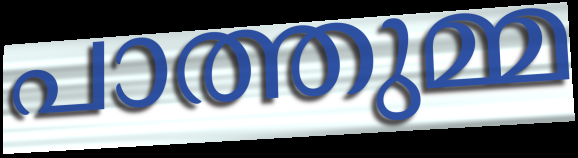
പാത്തുമ്മ